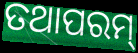
ତଥାପରମ୍